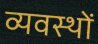
व्यवस्थों